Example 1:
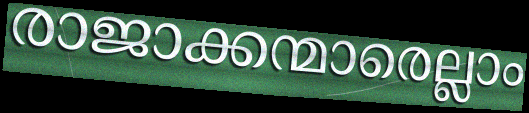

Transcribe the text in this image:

രാജാക്കന്മാരെല്ലാം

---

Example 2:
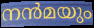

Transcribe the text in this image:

നൻമയും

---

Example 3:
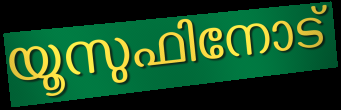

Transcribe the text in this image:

യൂസുഫിനോട്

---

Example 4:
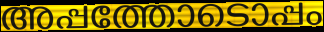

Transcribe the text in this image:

അപ്പത്തോടൊപ്പം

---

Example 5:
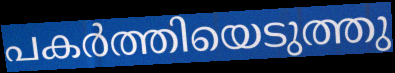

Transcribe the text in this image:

പകർത്തിയെടുത്തു